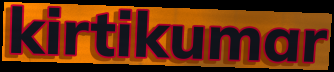
kirtikumar